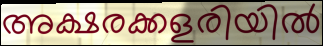
അക്ഷരക്കളരിയിൽ